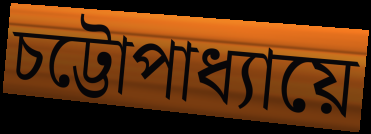
চট্টোপাধ্যায়ে